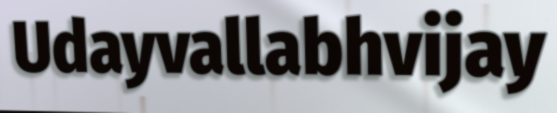
Udayvallabhvijay